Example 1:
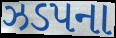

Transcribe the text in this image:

ઝડપના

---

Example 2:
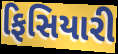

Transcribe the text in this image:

ફિસિયારી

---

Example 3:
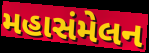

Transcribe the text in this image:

મહાસંમેલન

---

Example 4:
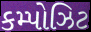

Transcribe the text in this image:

કમ્પોઝિટ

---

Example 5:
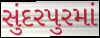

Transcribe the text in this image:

સુંદરપુરમાં